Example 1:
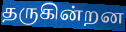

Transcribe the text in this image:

தருகின்றன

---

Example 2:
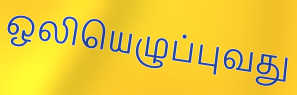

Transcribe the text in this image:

ஒலியெழுப்புவது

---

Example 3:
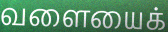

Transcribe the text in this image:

வளையைக்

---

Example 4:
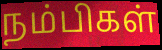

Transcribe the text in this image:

நம்பிகள்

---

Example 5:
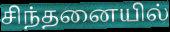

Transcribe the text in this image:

சிந்தனையில்